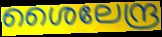
ശൈലേന്ദ്ര